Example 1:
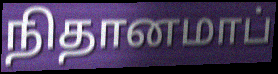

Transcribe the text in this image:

நிதானமாப்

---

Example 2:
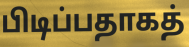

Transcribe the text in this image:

பிடிப்பதாகத்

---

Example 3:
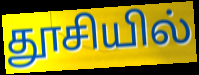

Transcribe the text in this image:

தூசியில்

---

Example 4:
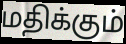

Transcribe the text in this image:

மதிக்கும்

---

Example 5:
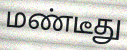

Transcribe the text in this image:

மண்டீது